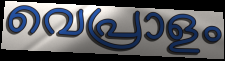
വെപ്രാളം